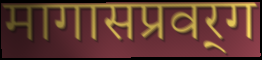
मागासप्रवर्ग